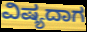
ವಿಷ್ಯದಾಗ